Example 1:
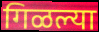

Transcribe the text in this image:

गिळल्या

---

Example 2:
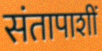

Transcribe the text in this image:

संतापाशीं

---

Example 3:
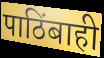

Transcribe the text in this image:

पाठिंबाही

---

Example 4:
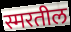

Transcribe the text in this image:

स्मरतील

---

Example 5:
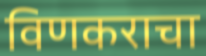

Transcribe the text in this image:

विणकराचा